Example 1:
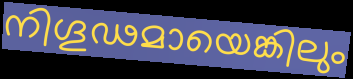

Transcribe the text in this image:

നിഗൂഢമായെങ്കിലും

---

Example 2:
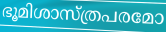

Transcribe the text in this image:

ഭൂമിശാസ്ത്രപരമോ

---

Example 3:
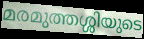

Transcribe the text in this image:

മരമുത്തശ്ശിയുടെ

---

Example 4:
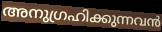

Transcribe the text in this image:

അനുഗ്രഹിക്കുന്നവൻ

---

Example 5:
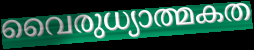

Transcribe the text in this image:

വൈരുധ്യാത്മകത